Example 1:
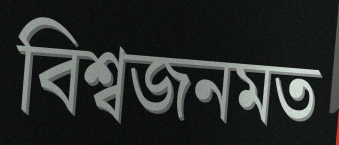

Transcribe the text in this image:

বিশ্বজনমত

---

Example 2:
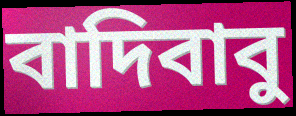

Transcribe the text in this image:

বাদিবাবু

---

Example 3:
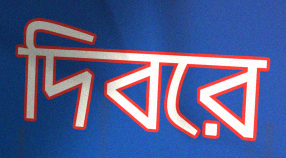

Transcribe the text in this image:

দিবরে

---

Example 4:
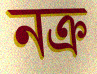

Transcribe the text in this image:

নক্র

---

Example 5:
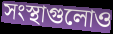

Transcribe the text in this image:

সংস্থাগুলোও